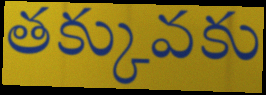
తక్కువకు